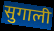
सुगाली